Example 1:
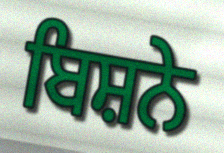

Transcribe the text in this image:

ਬਿਸ਼ਨੇ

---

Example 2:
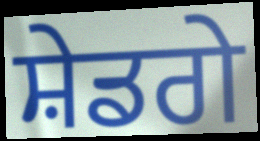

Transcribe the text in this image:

ਸ਼ੇਡਗੇ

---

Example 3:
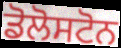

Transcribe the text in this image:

ਡੋਲੋਸਟੋਨ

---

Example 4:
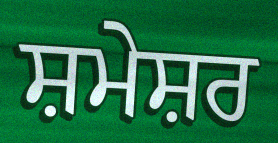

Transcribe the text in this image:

ਸ਼ਮੇਸ਼ਰ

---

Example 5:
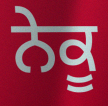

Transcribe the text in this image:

ਨੇਕੂ